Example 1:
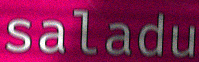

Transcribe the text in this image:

saladu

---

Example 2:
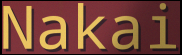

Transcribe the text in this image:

Nakai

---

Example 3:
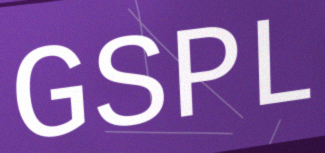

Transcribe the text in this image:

GSPL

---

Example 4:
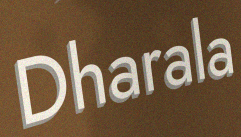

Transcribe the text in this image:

Dharala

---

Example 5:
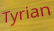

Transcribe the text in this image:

Tyrian